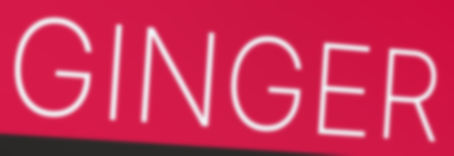
GINGER